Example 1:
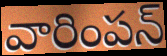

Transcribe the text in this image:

వారింపన్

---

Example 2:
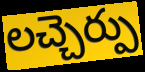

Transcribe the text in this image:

లచ్చెర్పు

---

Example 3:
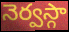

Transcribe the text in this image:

నెర్వస్గా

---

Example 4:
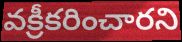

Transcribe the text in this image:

వక్రీకరించారని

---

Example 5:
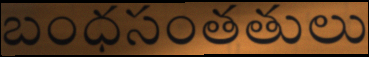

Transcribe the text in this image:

బంధసంతతులు